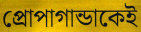
প্রোপাগান্ডাকেই